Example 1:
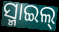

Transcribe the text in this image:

ସ୍ମାଇଲ୍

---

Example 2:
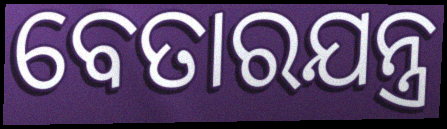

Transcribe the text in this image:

ବେତାରଯନ୍ତ୍ର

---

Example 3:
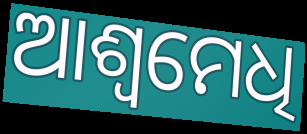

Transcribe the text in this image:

ଆଶ୍ୱମେଧି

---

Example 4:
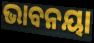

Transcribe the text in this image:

ଭାବନୟା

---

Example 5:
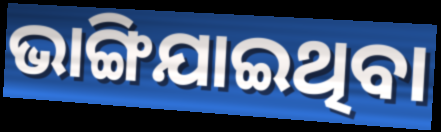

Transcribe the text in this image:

ଭାଙ୍ଗିଯାଇଥିବା